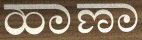
ಹಾಣಾ